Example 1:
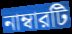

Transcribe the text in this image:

নাম্বারটি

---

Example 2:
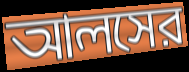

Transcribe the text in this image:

আলসের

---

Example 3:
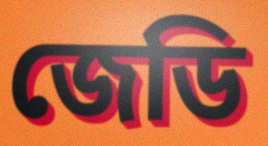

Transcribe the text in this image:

জেডি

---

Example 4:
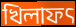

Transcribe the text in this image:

খিলাফৎ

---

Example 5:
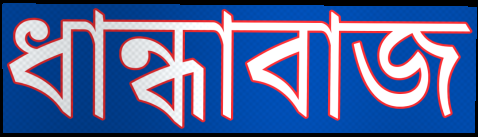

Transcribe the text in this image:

ধান্ধাবাজ